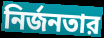
নির্জনতার